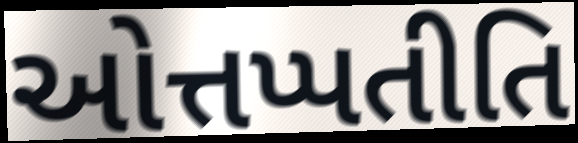
ઓત્તપ્પતીતિ